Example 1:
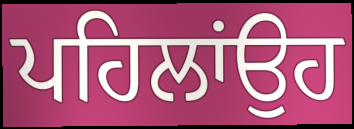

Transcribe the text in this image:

ਪਹਿਲਾਂਉਹ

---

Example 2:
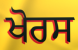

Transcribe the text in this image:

ਖੋਰਸ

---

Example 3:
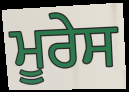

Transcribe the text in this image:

ਮੂਰੇਸ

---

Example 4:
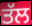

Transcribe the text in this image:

ਤੱਲ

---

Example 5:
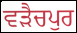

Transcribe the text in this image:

ਵੜੈਚਪੁਰ